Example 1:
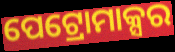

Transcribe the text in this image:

ପେଟ୍ରୋମାକ୍ସର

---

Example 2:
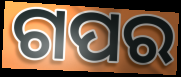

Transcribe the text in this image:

ଗପର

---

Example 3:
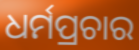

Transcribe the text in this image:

ଧର୍ମପ୍ରଚାର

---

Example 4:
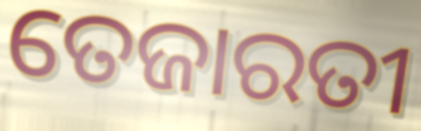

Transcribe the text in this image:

ତେଜାରତୀ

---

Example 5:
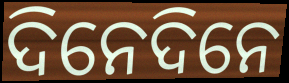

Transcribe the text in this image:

ଦିନେଦିନେ